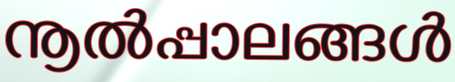
നൂൽപ്പാലങ്ങൾ